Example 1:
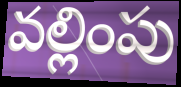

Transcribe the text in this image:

వల్లింపు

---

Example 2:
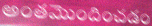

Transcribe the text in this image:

అంతమొందించడం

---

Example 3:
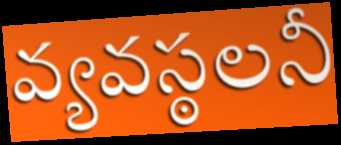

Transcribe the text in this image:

వ్యవస్ఠలనీ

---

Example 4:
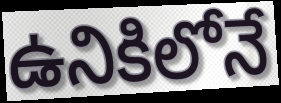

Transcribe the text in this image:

ఉనికిలోనే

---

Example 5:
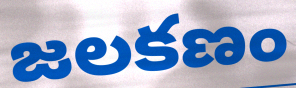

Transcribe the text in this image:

జలకణం